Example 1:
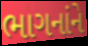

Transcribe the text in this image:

ભાગનાંને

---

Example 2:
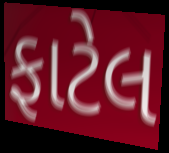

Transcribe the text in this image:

ફાટેલ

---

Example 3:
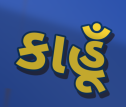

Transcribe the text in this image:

કાહૂઁ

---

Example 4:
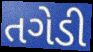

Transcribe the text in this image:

તગેડી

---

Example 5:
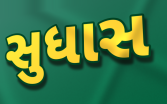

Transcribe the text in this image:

સુધાસ